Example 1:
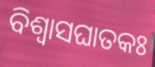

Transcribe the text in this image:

ବିଶ୍ୱାସଘାତକଃ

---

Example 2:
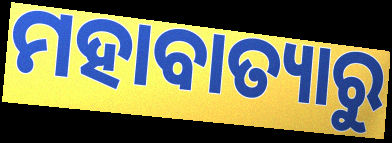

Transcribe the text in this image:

ମହାବାତ୍ୟାରୁ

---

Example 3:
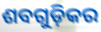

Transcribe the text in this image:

ଶବଗୁଡ଼ିକର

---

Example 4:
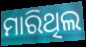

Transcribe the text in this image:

ମାରିଥିଲ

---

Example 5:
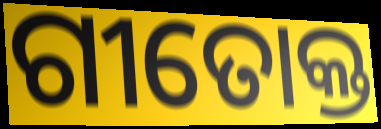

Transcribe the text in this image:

ଗୀତୋକ୍ତ